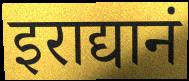
इराद्यानं